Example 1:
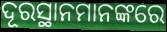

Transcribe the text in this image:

ଦୂରସ୍ଥାନମାନଙ୍କରେ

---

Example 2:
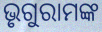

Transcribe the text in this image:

ଭୃଗୁରାମଙ୍କ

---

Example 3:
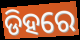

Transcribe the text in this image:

ଡିହରେ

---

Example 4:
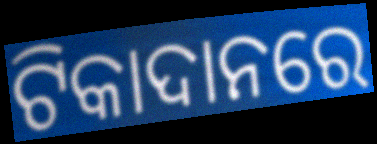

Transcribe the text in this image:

ଟିକାଦାନରେ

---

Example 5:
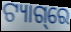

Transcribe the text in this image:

ଟ୍ୟାଗ୍‌ରେ